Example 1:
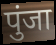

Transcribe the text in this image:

पुंजा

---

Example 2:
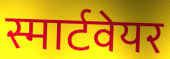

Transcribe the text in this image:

स्मार्टवेयर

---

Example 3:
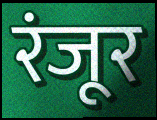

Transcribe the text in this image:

रंजूर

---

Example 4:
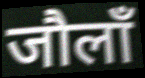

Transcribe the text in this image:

जौलाँ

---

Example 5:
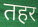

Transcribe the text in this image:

तहर